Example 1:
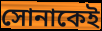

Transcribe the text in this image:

সোনাকেই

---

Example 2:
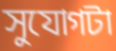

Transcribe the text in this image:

সুযোগটা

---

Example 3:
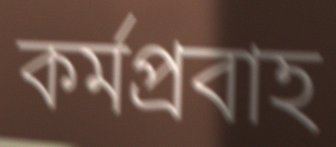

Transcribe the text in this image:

কর্মপ্রবাহ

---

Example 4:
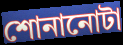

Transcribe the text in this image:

শোনানোটা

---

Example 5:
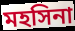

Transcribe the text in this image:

মহসিনা